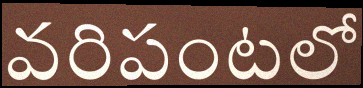
వరిపంటలో